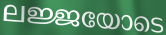
ലജ്ജയോടെ